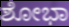
ಶೋಭಾ